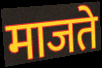
माजते